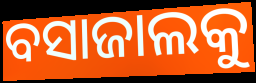
ବସାଜାଲକୁ